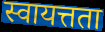
स्वायत्तता